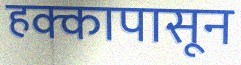
हक्कापासून